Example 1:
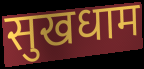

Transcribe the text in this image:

सुखधाम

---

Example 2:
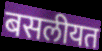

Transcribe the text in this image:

बसलीयत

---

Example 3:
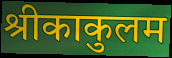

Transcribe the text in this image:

श्रीकाकुलम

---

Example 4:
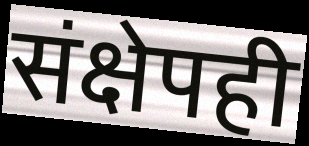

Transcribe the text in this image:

संक्षेपही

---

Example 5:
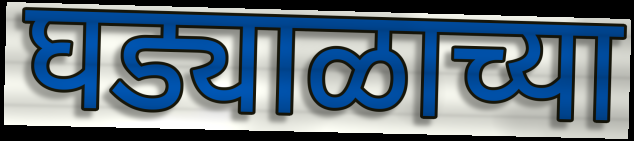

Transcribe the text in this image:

घड्याळाच्या